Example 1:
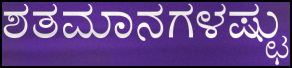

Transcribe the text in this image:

ಶತಮಾನಗಳಷ್ಟು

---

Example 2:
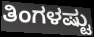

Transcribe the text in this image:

ತಿಂಗಳಷ್ಟು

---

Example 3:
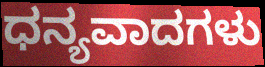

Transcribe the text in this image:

ಧನ್ಯವಾದಗಳು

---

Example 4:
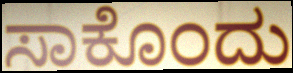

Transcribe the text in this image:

ಸಾಕೊಂದು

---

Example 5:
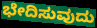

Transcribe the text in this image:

ಭೇದಿಸುವುದು